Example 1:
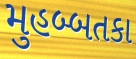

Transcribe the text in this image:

મુહબ્બતકા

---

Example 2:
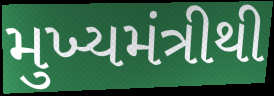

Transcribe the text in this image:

મુખ્યમંત્રીથી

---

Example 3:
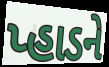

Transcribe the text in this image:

પ્હાડને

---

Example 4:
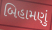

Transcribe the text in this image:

બિહામણું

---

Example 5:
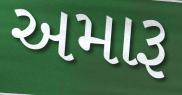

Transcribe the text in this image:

અમારૂ